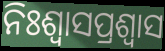
ନିଃଶ୍ୱାସପ୍ରଶ୍ୱାସ